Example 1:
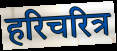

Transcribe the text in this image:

हरिचरित्र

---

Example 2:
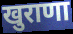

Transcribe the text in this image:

खुराणा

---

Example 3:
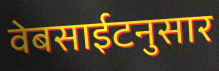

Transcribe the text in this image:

वेबसाईटनुसार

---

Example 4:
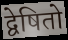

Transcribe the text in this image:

द्वेषितो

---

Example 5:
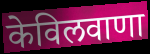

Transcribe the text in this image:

केविलवाणा